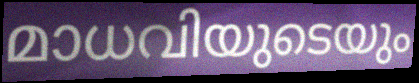
മാധവിയുടെയും